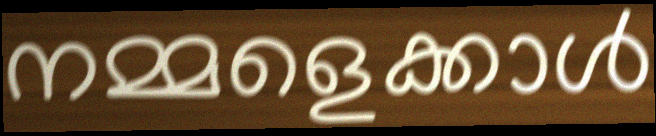
നമ്മളെക്കാൾ